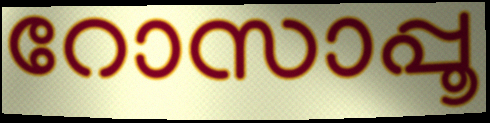
റോസാപ്പൂ